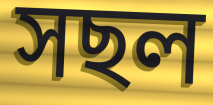
সছল